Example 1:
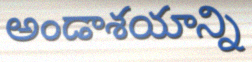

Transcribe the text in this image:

అండాశయాన్ని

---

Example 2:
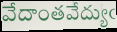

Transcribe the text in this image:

వేదాంతవేద్యుఁ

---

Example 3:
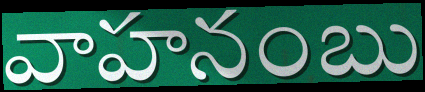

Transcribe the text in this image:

వాహనంబు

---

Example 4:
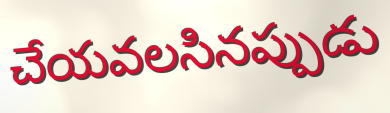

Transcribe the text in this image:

చేయవలసినప్పుడు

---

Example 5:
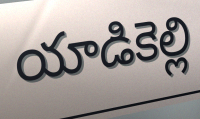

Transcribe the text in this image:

యాడికెల్లి